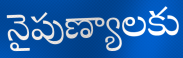
నైపుణ్యాలకు